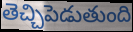
తెచ్చిపెడుతుంది